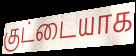
குட்டையாக